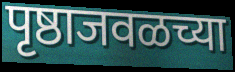
पृष्ठाजवळच्या